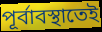
পূর্বাবস্থাতেই